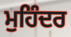
ਮੁਹਿੰਦਰ